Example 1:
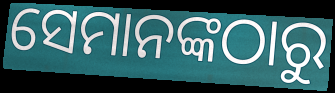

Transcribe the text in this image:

ସେମାନଙ୍କଠାରୁ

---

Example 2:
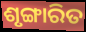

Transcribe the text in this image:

ଶୃଙ୍ଗାରିତ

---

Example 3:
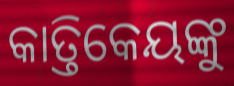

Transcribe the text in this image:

କାତ୍ତିକେୟଙ୍କୁ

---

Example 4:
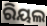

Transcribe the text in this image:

ରିୟଲ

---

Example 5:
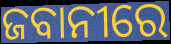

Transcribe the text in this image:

ଜବାନୀରେ